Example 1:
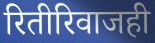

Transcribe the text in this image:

रितीरिवाजही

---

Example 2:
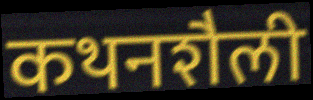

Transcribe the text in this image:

कथनशैली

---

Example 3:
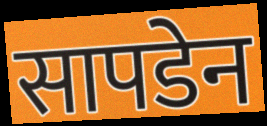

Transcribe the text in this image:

सापडेन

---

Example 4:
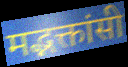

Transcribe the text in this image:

मद्भक्तांसी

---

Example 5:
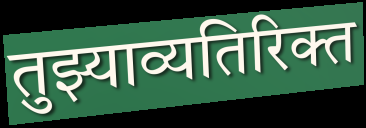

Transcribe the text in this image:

तुझ्याव्यतिरिक्त